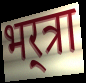
भर्त्रा